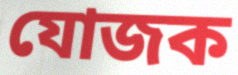
যোজক